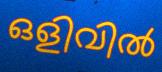
ഒളിവിൽ